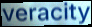
veracity